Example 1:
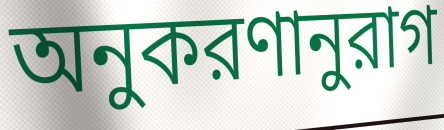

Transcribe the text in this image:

অনুকরণানুরাগ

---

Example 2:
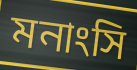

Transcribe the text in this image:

মনাংসি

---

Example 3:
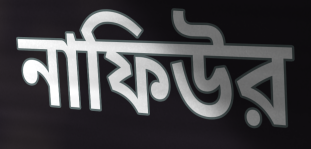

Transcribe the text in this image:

নাফিউর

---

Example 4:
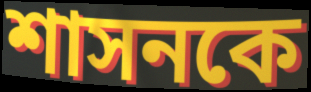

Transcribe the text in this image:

শাসনকে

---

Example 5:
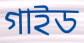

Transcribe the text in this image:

গাইড